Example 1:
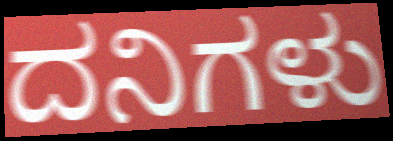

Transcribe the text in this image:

ದನಿಗಳು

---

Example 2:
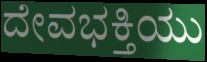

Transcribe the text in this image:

ದೇವಭಕ್ತಿಯು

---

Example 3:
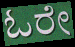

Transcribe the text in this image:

ಓರೇ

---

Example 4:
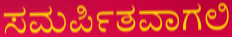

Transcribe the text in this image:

ಸಮರ್ಪಿತವಾಗಲಿ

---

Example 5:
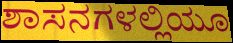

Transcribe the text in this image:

ಶಾಸನಗಳಲ್ಲಿಯೂ